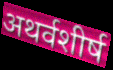
अथर्वशीर्ष